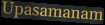
Upasamanam